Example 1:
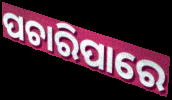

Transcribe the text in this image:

ପଚାରିପାରେ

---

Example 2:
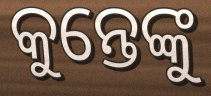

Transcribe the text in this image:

କୁନ୍ତେଙ୍କୁ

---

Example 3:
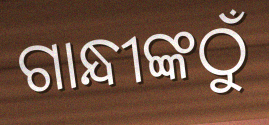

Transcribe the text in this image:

ଗାନ୍ଧୀଙ୍କଠୁଁ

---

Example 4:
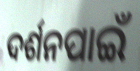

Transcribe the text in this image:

ଦର୍ଶନପାଇଁ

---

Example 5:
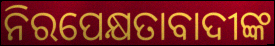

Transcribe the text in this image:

ନିରପେକ୍ଷତାବାଦୀଙ୍କ